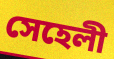
সেহেলী